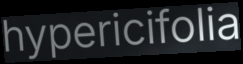
hypericifolia